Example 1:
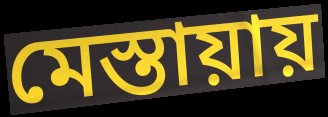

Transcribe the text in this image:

মেস্তায়ায়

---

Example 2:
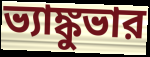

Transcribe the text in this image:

ভ্যাঙ্কুভার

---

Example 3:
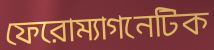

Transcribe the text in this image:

ফেরোম্যাগনেটিক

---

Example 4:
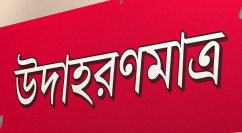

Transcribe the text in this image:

উদাহরণমাত্র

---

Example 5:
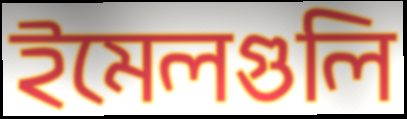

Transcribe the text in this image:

ইমেলগুলি